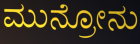
ಮುನ್ರೋನು